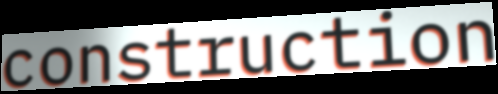
construction